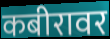
कबीरावर